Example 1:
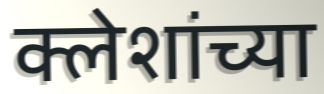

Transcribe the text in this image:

क्लेशांच्या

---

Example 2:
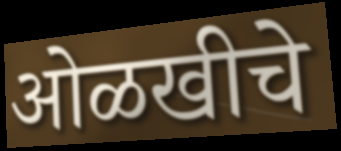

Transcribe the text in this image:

ओळखीचे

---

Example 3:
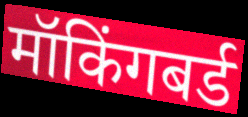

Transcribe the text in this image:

मॉकिंगबर्ड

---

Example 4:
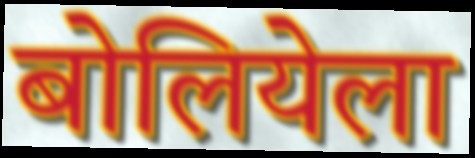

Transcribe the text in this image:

बोलियेला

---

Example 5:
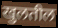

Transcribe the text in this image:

खुलतील